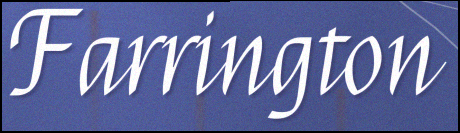
Farrington